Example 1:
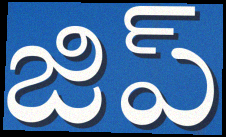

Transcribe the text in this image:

జిప్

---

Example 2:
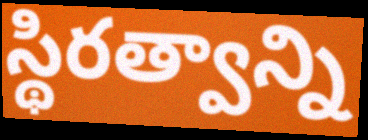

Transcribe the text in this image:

స్థిరత్వాన్ని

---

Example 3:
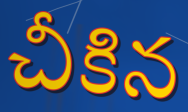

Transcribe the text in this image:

చీకిన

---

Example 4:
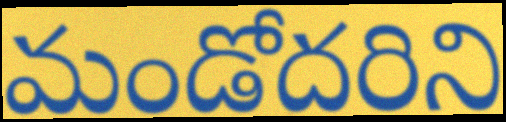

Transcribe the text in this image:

మండోదరిని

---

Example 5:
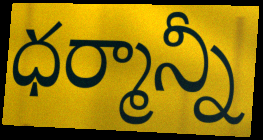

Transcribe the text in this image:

ధర్మాన్నీ